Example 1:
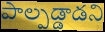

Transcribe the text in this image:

పాల్పడ్డాడని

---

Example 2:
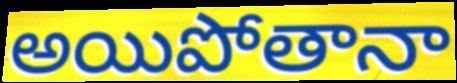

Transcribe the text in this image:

అయిపోతానా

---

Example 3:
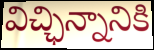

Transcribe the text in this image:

విచ్ఛిన్నానికి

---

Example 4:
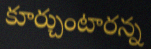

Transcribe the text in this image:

కూర్చుంటారన్న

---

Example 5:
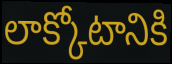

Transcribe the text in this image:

లాక్కోటానికి